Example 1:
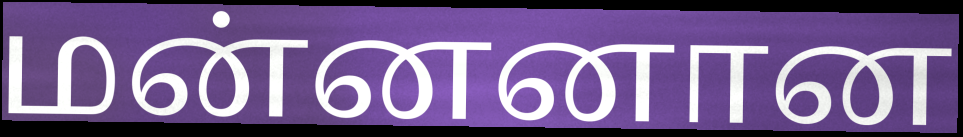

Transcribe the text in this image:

மன்னனான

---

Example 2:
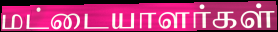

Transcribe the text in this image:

மட்டையாளர்கள்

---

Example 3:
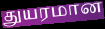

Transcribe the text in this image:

துயரமான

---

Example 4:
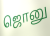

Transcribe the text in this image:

ஜொனு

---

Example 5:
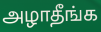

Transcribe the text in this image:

அழாதீங்க